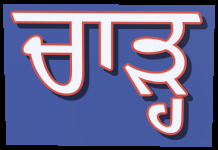
ਚਾਡ਼੍ਹ